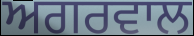
ਅਗਰਵਾਲ